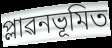
প্লাৱনভূমিত